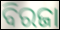
ବିରଜା